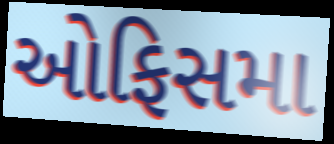
ઓફિસમા